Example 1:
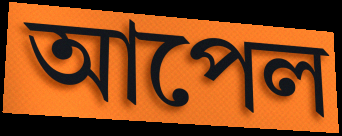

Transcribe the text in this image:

আপেল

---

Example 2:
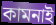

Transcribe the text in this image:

কামনাই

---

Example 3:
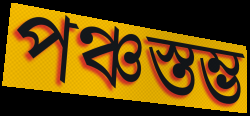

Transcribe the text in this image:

পঞ্চস্তম্ভ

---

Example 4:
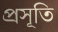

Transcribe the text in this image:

প্ৰসূতি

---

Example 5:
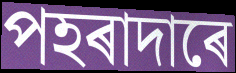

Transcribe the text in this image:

পহৰাদাৰে